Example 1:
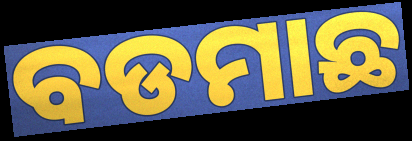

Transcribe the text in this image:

ବଡମାଛ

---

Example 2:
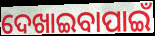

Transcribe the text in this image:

ଦେଖାଇବାପାଇଁ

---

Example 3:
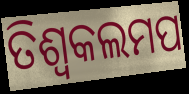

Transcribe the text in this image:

ତିଶ୍ୱକଲମପ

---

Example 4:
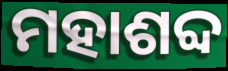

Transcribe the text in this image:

ମହାଶବ୍ଦ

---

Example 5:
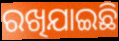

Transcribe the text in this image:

ରଖିଯାଇଛି